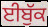
ਈਬੁੱਕ